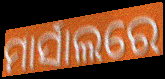
ମାର୍ସାଲରେ